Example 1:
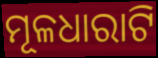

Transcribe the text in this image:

ମୂଳଧାରାଟି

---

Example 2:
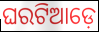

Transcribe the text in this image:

ଘରଟିଆଡ଼େ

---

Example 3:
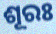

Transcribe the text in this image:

ଶୂରଃ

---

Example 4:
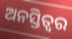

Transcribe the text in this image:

ଅନସ୍ତିତ୍ୱର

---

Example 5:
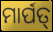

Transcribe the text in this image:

ମାର୍ପତ୍